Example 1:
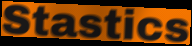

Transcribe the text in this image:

Stastics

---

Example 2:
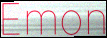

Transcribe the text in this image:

Emon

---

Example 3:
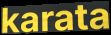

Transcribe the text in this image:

karata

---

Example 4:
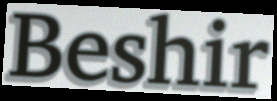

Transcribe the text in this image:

Beshir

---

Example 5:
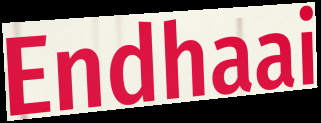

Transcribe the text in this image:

Endhaai